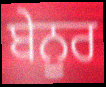
ਬੇਨੂਰ